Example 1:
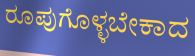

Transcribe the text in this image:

ರೂಪುಗೊಳ್ಳಬೇಕಾದ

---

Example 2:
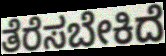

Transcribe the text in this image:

ತೆರೆಸಬೇಕಿದೆ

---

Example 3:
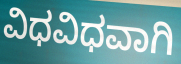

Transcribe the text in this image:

ವಿಧವಿಧವಾಗಿ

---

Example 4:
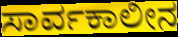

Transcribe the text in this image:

ಸಾರ್ವಕಾಲೀನ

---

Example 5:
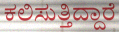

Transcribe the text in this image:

ಕಲಿಸುತ್ತಿದ್ದಾರೆ